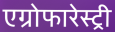
एग्रोफारेस्ट्री